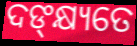
ଦଙ୍କ୍ଷ୍ଯତେ